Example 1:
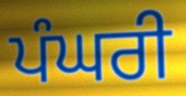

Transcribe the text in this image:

ਪੰਘਰੀ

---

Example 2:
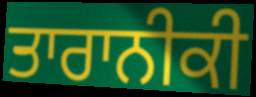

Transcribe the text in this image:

ਤਾਰਾਨੀਕੀ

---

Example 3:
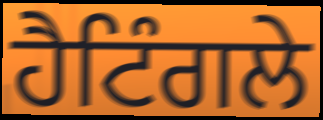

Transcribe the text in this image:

ਹੈਟਿੰਗਲੇ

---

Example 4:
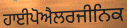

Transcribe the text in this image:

ਹਾਈਪੋਐਲਰਜੀਨਿਕ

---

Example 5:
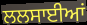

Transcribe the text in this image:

ਲਲਸਾਈਆਂ